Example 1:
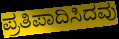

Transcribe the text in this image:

ಪ್ರತಿಪಾದಿಸಿದವು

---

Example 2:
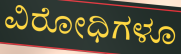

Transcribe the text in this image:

ವಿರೋಧಿಗಳೂ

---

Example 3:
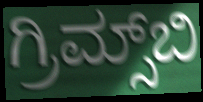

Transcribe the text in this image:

ಗ್ರಿಮ್ಸ್‌ಬಿ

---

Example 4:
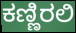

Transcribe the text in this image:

ಕಣ್ಣಿರಲಿ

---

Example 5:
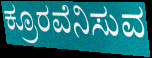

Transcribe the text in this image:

ಕ್ರೂರವೆನಿಸುವ